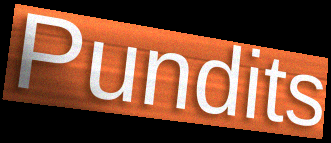
Pundits